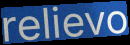
relievo